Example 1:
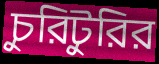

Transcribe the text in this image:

চুরিটুরির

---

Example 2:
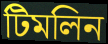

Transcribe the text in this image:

টিমলিন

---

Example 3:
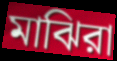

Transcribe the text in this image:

মাঝিরা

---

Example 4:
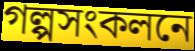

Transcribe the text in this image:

গল্পসংকলনে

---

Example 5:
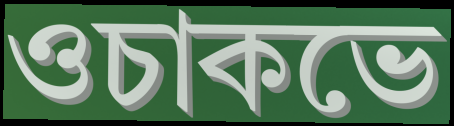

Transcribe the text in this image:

ওচাকভে